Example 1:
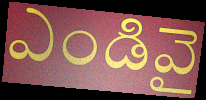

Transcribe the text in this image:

ఎండివై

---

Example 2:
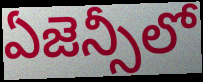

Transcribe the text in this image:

ఏజెన్సీలో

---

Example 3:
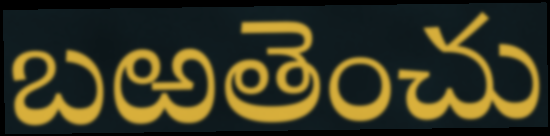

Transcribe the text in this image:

బఱతెంచు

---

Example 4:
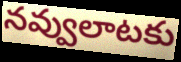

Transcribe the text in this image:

నవ్వులాటకు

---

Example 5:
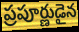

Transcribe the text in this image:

ప్రపూర్ణుడైన